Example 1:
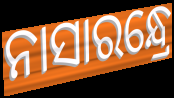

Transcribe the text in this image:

ନାସାରନ୍ଧ୍ରେ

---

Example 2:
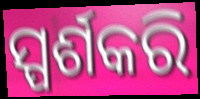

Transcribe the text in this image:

ସ୍ପର୍ଶକରି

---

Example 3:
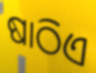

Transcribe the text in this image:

ଷାଠିଏ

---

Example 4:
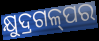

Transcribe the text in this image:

କ୍ଷୁଦ୍ରଗଳ୍‌ପର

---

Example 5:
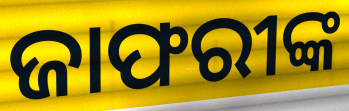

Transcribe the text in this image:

ଜାଫରୀଙ୍କ